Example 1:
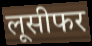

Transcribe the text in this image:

लूसीफर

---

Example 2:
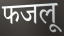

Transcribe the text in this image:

फजलू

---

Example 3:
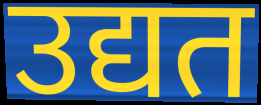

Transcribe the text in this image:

उद्यत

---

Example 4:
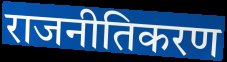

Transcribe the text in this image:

राजनीतिकरण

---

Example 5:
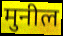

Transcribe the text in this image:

मुनील